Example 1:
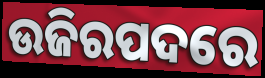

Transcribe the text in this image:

ଉଜିରପଦରେ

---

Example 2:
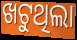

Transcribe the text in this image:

ଖଟୁଥିଲା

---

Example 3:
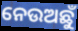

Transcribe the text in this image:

ନେଉଅଛୁଁ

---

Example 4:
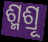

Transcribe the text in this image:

ଶ୍ମଶ୍ରୂ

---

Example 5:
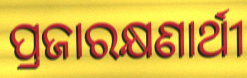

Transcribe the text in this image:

ପ୍ରଜାରକ୍ଷଣାର୍ଥୀ